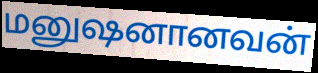
மனுஷனானவன்